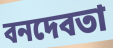
বনদেবতা